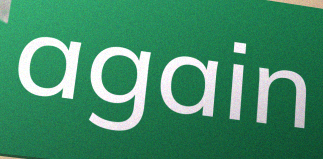
again